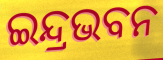
ଇନ୍ଦ୍ରଭବନ